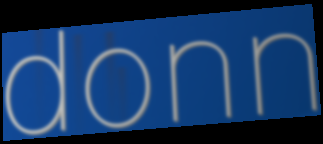
donn